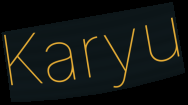
Karyu